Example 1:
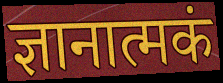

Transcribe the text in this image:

ज्ञानात्मकं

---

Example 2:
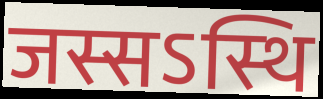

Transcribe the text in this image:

जस्सऽस्थि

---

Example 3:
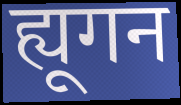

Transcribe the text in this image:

ह्यूगन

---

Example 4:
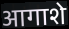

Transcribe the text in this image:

आगाशे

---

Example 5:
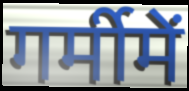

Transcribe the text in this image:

गर्मीमें